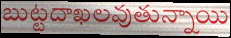
బుట్టదాఖలవుతున్నాయి